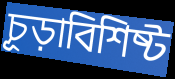
চূড়াবিশিষ্ট